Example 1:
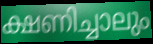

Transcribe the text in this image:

ക്ഷണിച്ചാലും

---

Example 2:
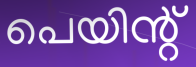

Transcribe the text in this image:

പെയിന്റ്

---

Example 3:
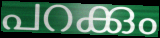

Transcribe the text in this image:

പറക്കും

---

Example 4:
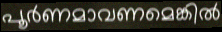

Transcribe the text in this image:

പൂർണമാവണമെങ്കിൽ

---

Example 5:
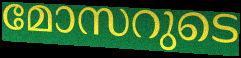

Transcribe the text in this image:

മോസറുടെ